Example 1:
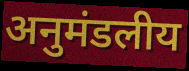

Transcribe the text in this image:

अनुमंडलीय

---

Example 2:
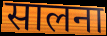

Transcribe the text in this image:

सालना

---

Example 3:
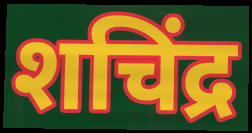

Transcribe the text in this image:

शचिंद्र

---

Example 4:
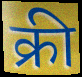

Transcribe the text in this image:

क्री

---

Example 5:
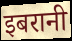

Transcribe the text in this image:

इबरानी